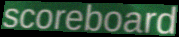
scoreboard